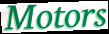
Motors